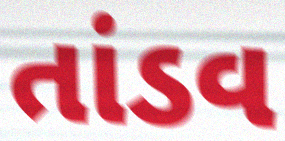
તાંડવ